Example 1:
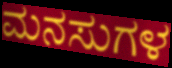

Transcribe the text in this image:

ಮನಸುಗಳ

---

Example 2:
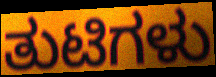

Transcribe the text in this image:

ತುಟಿಗಳು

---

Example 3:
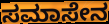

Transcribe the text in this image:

ಸಮಾಸೇನ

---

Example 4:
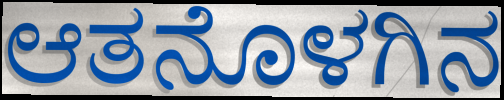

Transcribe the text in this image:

ಆತನೊಳಗಿನ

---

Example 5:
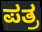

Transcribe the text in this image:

ಪತ್ರ